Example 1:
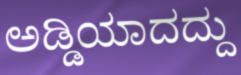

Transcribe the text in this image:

ಅಡ್ಡಿಯಾದದ್ದು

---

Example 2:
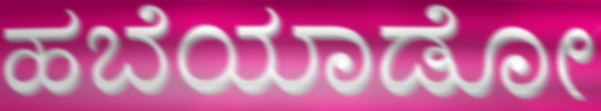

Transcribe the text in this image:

ಹಬೆಯಾಡೋ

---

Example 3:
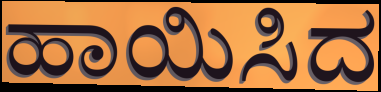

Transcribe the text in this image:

ಹಾಯಿಸಿದ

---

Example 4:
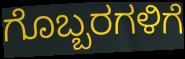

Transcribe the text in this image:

ಗೊಬ್ಬರಗಳಿಗೆ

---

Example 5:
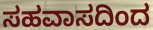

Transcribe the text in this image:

ಸಹವಾಸದಿಂದ